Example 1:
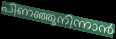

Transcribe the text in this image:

പിണഞ്ഞുനിന്നാൻ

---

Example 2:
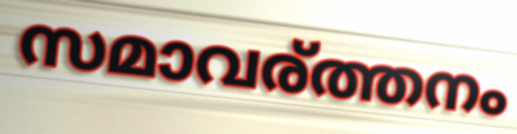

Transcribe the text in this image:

സമാവര്ത്തനം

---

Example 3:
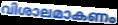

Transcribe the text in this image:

വിശാലമാകണം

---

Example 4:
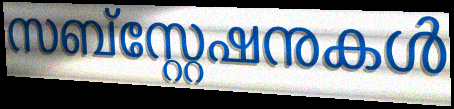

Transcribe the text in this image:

സബ്സ്റ്റേഷനുകൾ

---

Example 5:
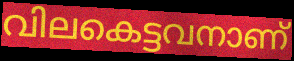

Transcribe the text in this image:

വിലകെട്ടവനാണ്